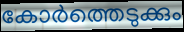
കോർത്തെടുക്കും